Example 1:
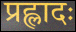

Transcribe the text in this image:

प्रह्लादः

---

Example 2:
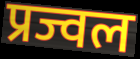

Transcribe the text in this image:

प्रज्वल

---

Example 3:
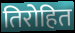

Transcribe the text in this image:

तिरोहित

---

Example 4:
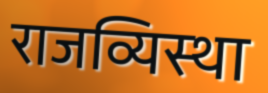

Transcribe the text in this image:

राजव्यिस्था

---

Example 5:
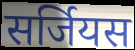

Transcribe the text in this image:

सर्जियस